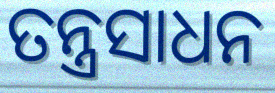
ତନ୍ତ୍ରସାଧନ